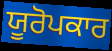
ਯੂਰੋਪਕਾਰ